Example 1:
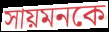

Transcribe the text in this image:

সায়মনকে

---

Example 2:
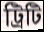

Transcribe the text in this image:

ট্রিটি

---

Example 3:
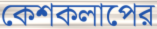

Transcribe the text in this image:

কেশকলাপের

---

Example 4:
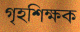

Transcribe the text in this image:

গৃহশিক্ষক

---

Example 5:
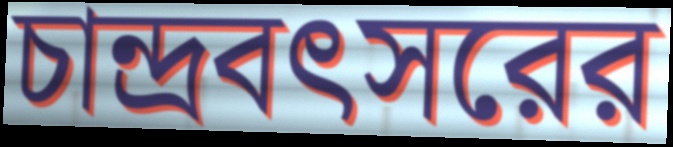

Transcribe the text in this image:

চান্দ্রবৎসরের